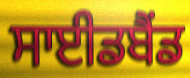
ਸਾਈਡਬੈਂਡ